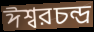
ঈশ্বরচন্দ্র